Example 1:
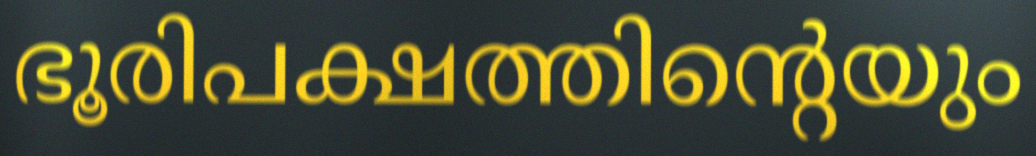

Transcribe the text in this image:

ഭൂരിപക്ഷത്തിന്റെയും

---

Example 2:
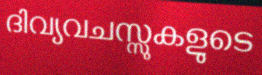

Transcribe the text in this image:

ദിവ്യവചസ്സുകളുടെ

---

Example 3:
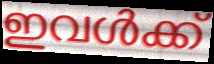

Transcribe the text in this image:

ഇവൾക്ക്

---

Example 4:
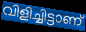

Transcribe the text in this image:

വിളിച്ചിട്ടാണ്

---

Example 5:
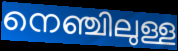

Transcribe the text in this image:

നെഞ്ചിലുള്ള